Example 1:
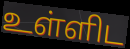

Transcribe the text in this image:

உள்ளிட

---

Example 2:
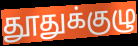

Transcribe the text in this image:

தூதுக்குழு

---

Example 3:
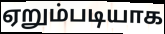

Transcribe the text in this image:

ஏறும்படியாக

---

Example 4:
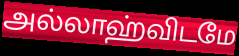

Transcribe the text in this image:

அல்லாஹ்விடமே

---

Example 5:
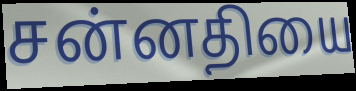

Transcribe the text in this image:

சன்னதியை